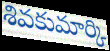
శివకుమార్కి